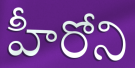
హీరోని